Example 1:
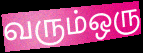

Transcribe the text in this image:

வரும்ஒரு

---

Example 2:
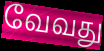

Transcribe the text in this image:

வேவது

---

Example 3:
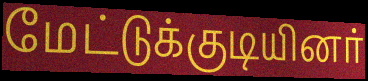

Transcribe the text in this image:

மேட்டுக்குடியினர்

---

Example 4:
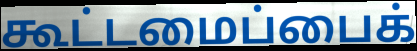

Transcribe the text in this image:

கூட்டமைப்பைக்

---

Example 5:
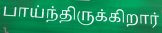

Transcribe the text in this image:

பாய்ந்திருக்கிறார்